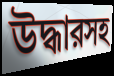
উদ্ধারসহ